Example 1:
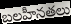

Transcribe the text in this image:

బలహీనతలు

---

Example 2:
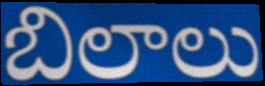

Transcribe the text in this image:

బిలాలు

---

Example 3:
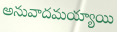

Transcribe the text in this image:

అనువాదమయ్యాయి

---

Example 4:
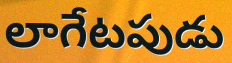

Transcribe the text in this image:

లాగేటపుడు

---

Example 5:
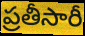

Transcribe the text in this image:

ప్రతీసారీ